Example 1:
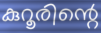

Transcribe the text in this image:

കുറൂരിന്റെ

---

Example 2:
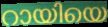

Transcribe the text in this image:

റായിയെ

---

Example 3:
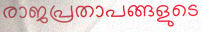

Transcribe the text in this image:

രാജപ്രതാപങ്ങളുടെ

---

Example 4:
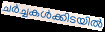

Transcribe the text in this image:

ചർച്ചകൾക്കിടയിൽ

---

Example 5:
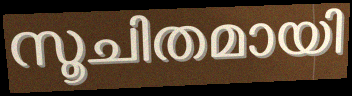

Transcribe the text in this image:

സൂചിതമായി